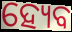
ହ୍ୟେବ